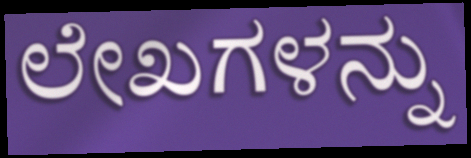
ಲೇಖಗಳನ್ನು